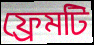
ফ্রেমটি